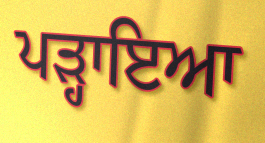
ਪੜ੍ਹਾਇਆ